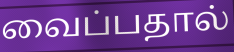
வைப்பதால்